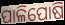
ପାଳିପୋଷି